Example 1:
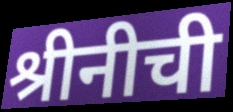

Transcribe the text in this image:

श्रीनीची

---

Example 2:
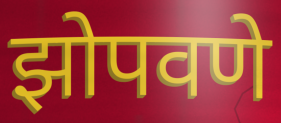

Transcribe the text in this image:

झोपवणे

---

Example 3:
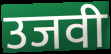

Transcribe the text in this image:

उजवी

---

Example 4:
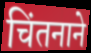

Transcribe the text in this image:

चिंतनाने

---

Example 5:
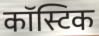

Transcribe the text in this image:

कॉस्टिक